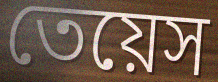
তেয়েস